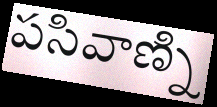
పసివాణ్ని